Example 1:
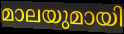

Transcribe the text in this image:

മാലയുമായി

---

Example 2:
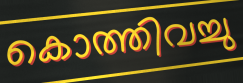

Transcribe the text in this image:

കൊത്തിവച്ചു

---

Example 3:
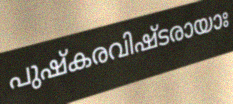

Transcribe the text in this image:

പുഷ്കരവിഷ്ടരായാഃ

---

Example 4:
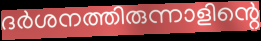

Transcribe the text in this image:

ദർശനത്തിരുന്നാളിന്റെ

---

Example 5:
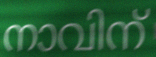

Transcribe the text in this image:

നാവിന്